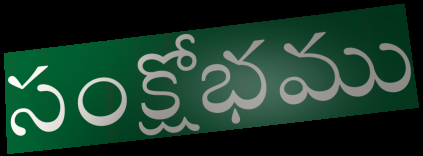
సంక్షోభము